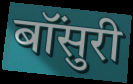
बॉंसुरी